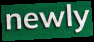
newly